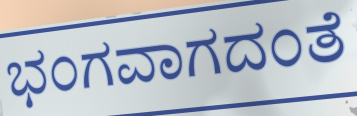
ಭಂಗವಾಗದಂತೆ